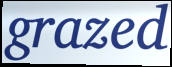
grazed